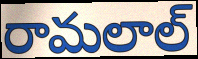
రామలాల్